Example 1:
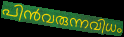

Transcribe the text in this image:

പിൻവരുന്നവിധം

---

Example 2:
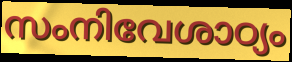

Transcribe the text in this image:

സംനിവേശാഠ്യം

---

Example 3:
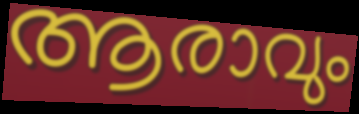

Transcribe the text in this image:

ആരാവും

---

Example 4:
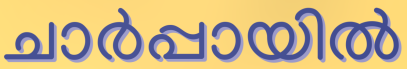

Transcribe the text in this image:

ചാർപ്പായിൽ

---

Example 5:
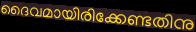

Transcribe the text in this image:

ദൈവമായിരിക്കേണ്ടതിനു